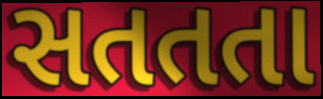
સતતતા